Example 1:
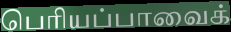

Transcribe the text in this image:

பெரியப்பாவைக்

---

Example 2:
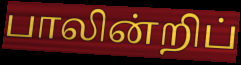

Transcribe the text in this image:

பாலின்றிப்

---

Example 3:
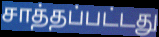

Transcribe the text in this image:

சாத்தப்பட்டது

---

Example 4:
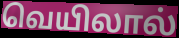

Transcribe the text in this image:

வெயிலால்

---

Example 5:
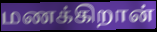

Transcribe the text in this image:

மணக்கிறான்